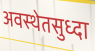
अवस्थेतसुध्दा